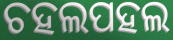
ଚହଲପହଲ